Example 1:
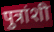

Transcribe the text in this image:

पुत्रांशी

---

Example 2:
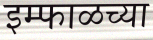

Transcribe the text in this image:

इम्फाळच्या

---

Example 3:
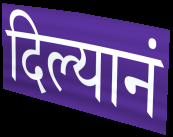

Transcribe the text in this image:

दिल्यानं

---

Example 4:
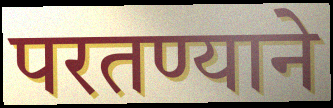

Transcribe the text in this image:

परतण्याने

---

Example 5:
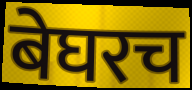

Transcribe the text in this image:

बेघरच